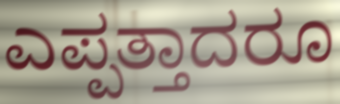
ಎಪ್ಪತ್ತಾದರೂ